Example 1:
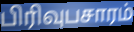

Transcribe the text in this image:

பிரிவுபசாரம்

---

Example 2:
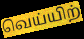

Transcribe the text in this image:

வெய்யிற்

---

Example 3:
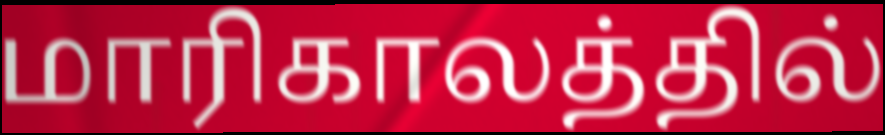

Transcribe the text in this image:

மாரிகாலத்தில்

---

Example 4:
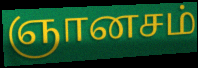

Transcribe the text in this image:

ஞானசம்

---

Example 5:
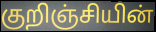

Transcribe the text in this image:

குறிஞ்சியின்